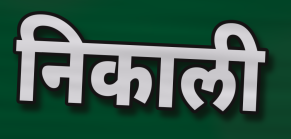
निकाली